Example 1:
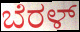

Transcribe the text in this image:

ಬೆರಳ್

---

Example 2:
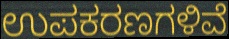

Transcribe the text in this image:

ಉಪಕರಣಗಳಿವೆ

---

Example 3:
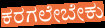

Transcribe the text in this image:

ಕರಗಲೇಬೇಕು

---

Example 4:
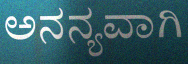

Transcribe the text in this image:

ಅನನ್ಯವಾಗಿ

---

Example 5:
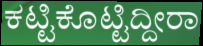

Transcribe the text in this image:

ಕಟ್ಟಿಕೊಟ್ಟಿದ್ದೀರಾ